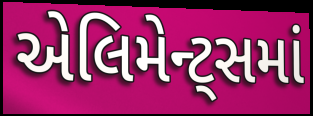
એલિમેન્ટ્સમાં